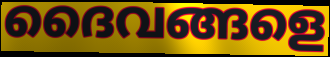
ദൈവങ്ങളെ